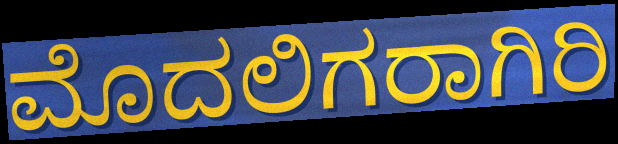
ಮೊದಲಿಗರಾಗಿರಿ